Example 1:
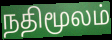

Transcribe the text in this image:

நதிமூலம்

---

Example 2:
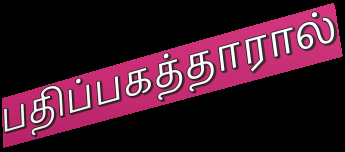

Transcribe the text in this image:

பதிப்பகத்தாரால்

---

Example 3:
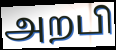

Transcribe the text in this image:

அறபி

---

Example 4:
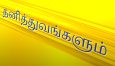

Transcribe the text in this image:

தனித்துவங்களும்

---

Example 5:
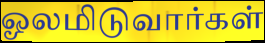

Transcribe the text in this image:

ஓலமிடுவார்கள்